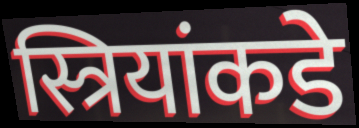
स्त्रियांकडे